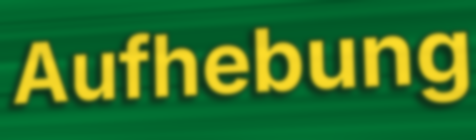
Aufhebung